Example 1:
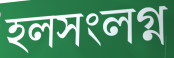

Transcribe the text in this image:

হলসংলগ্ন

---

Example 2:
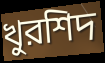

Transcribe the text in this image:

খুরশিদ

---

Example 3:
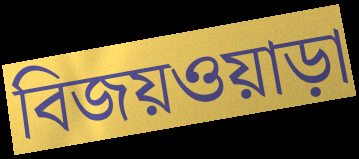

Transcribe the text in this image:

বিজয়ওয়াড়া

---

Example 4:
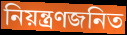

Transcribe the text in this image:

নিয়ন্ত্রণজনিত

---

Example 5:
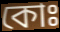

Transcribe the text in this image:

কোঃ